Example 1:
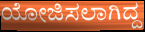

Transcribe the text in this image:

ಯೋಜಿಸಲಾಗಿದ್ದ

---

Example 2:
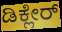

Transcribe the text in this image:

ಡಿಕ್ಲೇರ್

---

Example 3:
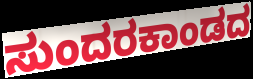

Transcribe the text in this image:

ಸುಂದರಕಾಂಡದ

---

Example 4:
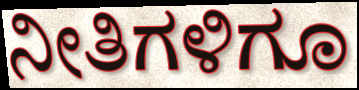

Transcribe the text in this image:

ನೀತಿಗಳಿಗೂ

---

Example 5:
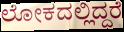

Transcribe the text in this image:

ಲೋಕದಲ್ಲಿದ್ದರೆ